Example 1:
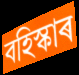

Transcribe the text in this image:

বহিস্কাৰ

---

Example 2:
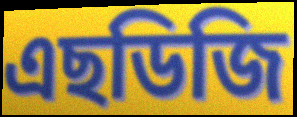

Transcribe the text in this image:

এছডিজি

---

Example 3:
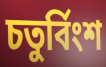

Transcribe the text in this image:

চতুৰ্বিংশ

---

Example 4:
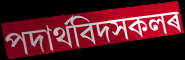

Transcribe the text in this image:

পদাৰ্থবিদসকলৰ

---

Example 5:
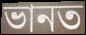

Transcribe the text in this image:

ভানত